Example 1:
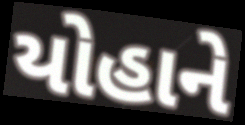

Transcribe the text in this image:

યોહાને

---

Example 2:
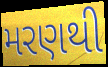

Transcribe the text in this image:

મરણથી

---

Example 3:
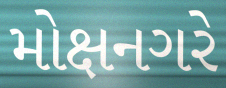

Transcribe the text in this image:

મોક્ષનગરે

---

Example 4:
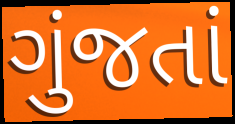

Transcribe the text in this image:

ગુંજતાં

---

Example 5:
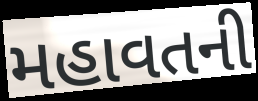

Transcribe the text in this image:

મહાવતની